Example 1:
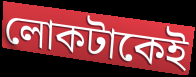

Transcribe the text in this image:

লোকটাকেই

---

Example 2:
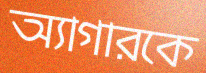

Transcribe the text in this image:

অ্যাগারকে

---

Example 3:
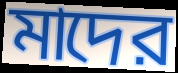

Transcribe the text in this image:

মাদের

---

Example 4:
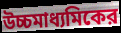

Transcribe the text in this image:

উচ্চমাধ্যমিকের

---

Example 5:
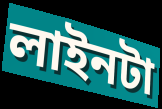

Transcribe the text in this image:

লাইনটা